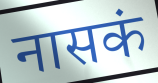
नासकं